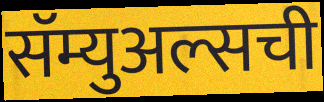
सॅम्युअल्सची